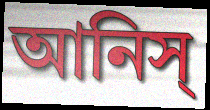
আনিস্